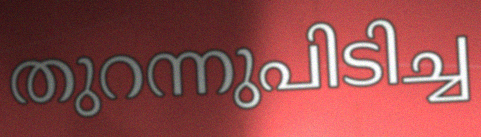
തുറന്നുപിടിച്ച